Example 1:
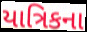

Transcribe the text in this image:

યાત્રિકના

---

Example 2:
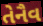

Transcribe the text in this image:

તેનૈવ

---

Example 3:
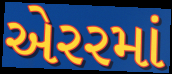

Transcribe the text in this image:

એરરમાં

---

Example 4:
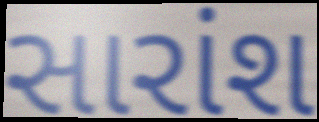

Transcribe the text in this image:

સારાંશ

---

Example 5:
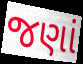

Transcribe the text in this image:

જણાં